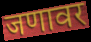
जणावर